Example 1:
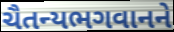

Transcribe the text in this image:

ચૈતન્યભગવાનને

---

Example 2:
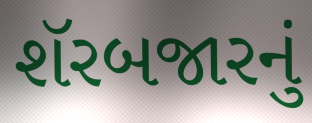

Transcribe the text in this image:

શૅરબજારનું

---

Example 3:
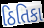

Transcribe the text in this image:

ઠિતિકા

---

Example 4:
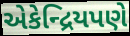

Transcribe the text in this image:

એકેન્દ્રિયપણે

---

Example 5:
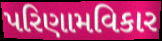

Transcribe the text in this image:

પરિણામવિકાર